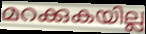
മറക്കുകയില്ല